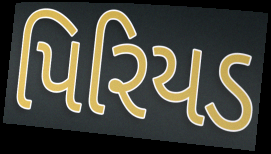
પિરિયડ